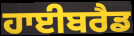
ਹਾਈਬਰੈਡ